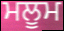
ਮਲੂਮ